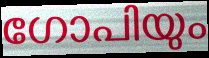
ഗോപിയും